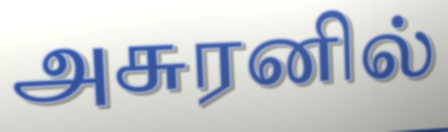
அசுரனில்